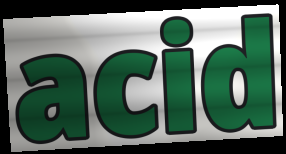
acid